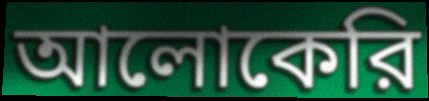
আলোকেরি